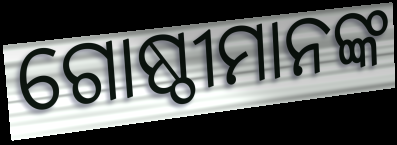
ଗୋଷ୍ଠୀମାନଙ୍କ